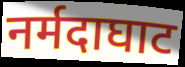
नर्मदाघाट